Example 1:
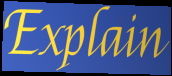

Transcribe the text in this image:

Explain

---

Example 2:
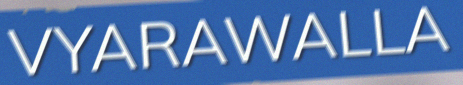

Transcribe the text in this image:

VYARAWALLA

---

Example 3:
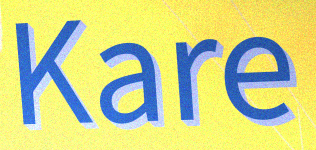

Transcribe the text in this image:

Kare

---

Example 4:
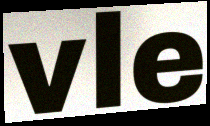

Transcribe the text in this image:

vle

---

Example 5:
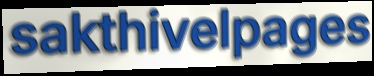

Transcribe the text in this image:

sakthivelpages